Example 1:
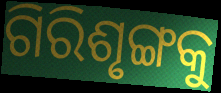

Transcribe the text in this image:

ଗିରିଶୃଙ୍ଗକୁ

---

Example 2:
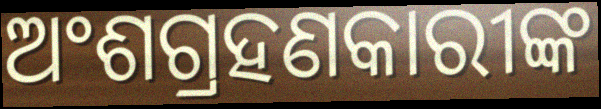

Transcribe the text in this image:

ଅଂଶଗ୍ରହଣକାରୀଙ୍କ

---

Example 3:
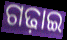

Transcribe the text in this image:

ଗଢ଼ାଇ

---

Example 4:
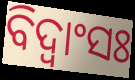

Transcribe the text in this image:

ବିଦ୍ଵାଂସଃ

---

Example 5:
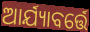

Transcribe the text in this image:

ଆର୍ଯ୍ୟାବର୍ତ୍ତେ